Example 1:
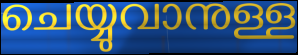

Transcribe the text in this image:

ചെയ്യുവാനുള്ള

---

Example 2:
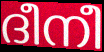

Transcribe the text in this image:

ദീനീ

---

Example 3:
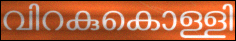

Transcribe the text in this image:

വിറകുകൊള്ളി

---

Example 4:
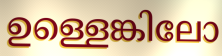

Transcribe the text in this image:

ഉള്ളെങ്കിലോ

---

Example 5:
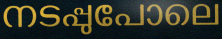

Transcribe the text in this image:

നടപ്പുപോലെ